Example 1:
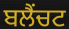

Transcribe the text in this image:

ਬਲੈਂਚਟ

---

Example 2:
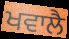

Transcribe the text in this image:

ਖਵਾਲੈ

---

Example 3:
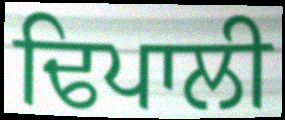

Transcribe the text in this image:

ਢਿਪਾਲੀ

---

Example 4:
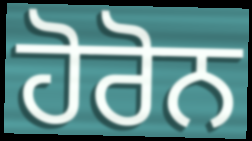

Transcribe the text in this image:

ਹੋਰੋਨ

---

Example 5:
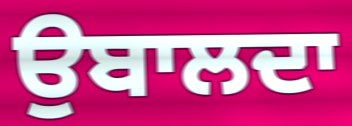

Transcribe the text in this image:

ਉਬਾਲਦਾ